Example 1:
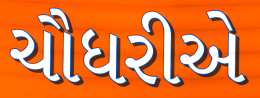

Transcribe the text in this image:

ચૌધરીએ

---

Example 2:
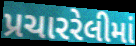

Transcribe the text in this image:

પ્રચારરેલીમાં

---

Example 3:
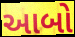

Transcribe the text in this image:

આબો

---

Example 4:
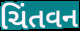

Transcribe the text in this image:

ચિંતવન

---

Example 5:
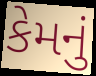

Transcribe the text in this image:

કેમનું